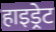
हाइड्रेट